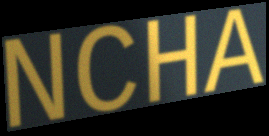
NCHA